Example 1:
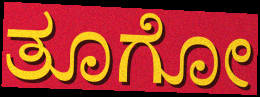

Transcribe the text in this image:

ತೂಗೋ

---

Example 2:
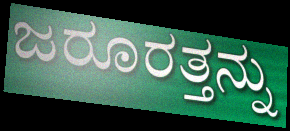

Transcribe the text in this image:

ಜರೂರತ್ತನ್ನು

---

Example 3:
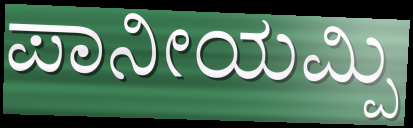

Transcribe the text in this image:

ಪಾನೀಯಮ್ಪಿ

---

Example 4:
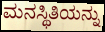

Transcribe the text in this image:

ಮನಸ್ಥಿತಿಯನ್ನು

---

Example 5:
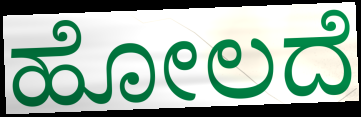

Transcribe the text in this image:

ಹೋಲದೆ